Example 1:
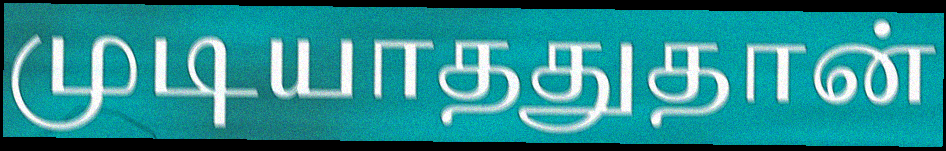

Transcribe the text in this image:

முடியாததுதான்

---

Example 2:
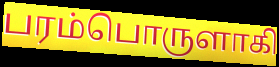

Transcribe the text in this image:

பரம்பொருளாகி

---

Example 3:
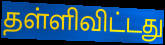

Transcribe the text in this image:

தள்ளிவிட்டது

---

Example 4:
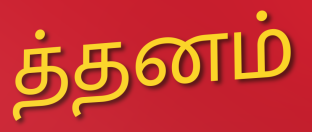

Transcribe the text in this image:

த்தனம்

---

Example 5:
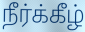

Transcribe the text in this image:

நீர்க்கீழ்